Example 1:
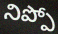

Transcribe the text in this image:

నిప్పో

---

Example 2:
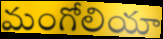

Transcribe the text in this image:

మంగోలియా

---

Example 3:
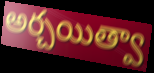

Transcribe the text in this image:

అర్చయిత్వా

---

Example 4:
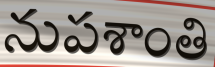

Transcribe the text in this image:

నుపశాంతి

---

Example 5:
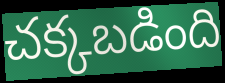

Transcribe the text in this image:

చక్కబడింది